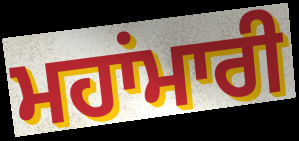
ਮਹਾਂਮਾਰੀ